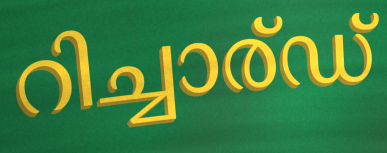
റിച്ചാര്ഡ്